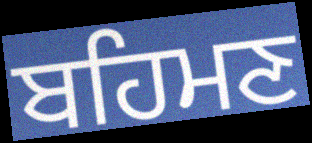
ਬਹਿਮਣ